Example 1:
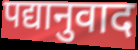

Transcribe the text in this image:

पद्यानुवाद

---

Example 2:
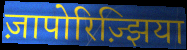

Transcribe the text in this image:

ज़ापोरिज़्झिया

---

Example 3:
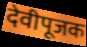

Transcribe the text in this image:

देवीपूजक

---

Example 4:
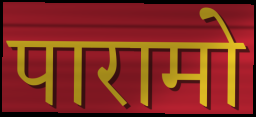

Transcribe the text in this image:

पारामो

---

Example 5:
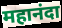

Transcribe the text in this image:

महानंदा